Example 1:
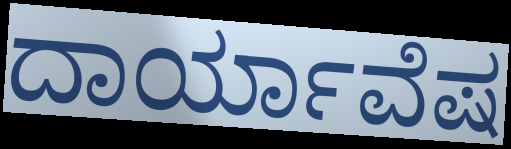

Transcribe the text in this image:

ದಾರ್ಯಾವೆಷ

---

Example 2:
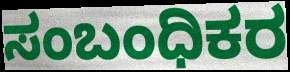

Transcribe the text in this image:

ಸಂಬಂಧಿಕರ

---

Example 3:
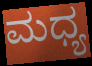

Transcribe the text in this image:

ಮಧ್ಯ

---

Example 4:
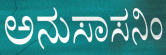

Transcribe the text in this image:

ಅನುಸಾಸನಿಂ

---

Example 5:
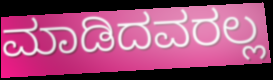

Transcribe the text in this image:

ಮಾಡಿದವರಲ್ಲ